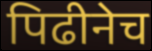
पिढीनेच